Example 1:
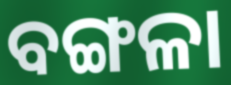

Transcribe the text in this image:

ବଙ୍ଗଳା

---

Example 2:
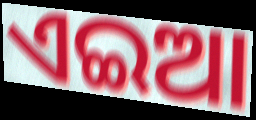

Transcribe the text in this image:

ଏଇଆ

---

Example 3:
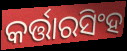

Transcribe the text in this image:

କର୍ତ୍ତାରସିଂହ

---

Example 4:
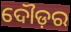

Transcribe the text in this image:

ଦୌଡ଼ର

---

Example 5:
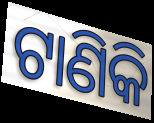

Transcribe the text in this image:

ଟାଣିକି